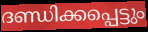
ദണ്ഡിക്കപ്പെട്ടും